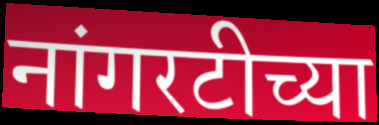
नांगरटीच्या